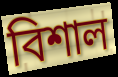
বিশাল